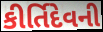
કીર્તિદેવની